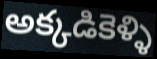
అక్కడికెళ్ళి